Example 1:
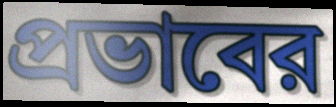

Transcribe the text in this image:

প্রভাবের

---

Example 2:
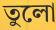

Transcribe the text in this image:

তুলো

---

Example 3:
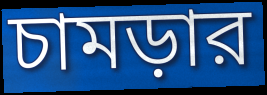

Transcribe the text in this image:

চামড়ার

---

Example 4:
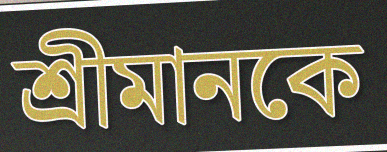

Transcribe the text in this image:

শ্রীমানকে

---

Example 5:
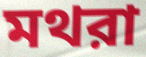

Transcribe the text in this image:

মথরা